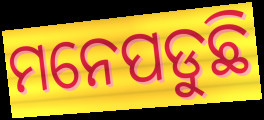
ମନେପଡୁଛି